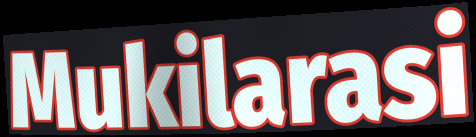
Mukilarasi